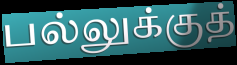
பல்லுக்குத்